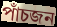
পাঁচজন